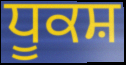
ਧੂਕਸ਼